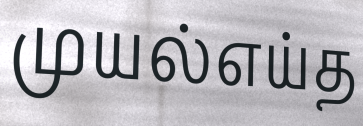
முயல்எய்த